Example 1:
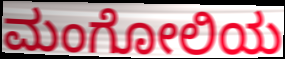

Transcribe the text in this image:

ಮಂಗೋಲಿಯ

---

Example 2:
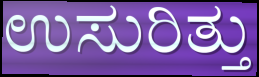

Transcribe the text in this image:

ಉಸುರಿತ್ತು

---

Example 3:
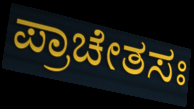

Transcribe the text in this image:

ಪ್ರಾಚೇತಸಃ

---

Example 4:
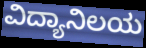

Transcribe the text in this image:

ವಿದ್ಯಾನಿಲಯ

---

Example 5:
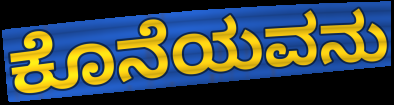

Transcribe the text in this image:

ಕೊನೆಯವನು